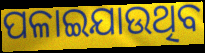
ପଳାଇଯାଉଥିବ